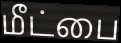
மீட்பை